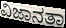
ವಿಜಾನತಾ